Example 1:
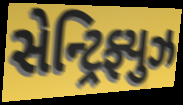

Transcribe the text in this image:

સેન્ટ્રિફ્યુઝ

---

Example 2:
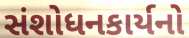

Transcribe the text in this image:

સંશોધનકાર્યનો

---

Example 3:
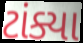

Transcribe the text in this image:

ટાંક્યા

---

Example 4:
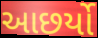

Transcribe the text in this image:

આછર્યો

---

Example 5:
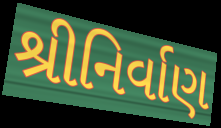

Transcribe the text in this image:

શ્રીનિર્વાણ